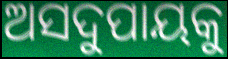
ଅସଦୁପାୟକୁ